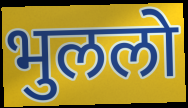
भुललो